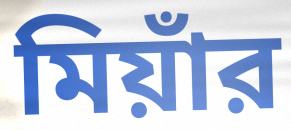
মিয়াঁর